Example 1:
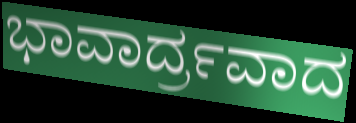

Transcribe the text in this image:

ಭಾವಾರ್ದ್ರವಾದ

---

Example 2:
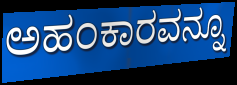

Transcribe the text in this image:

ಅಹಂಕಾರವನ್ನೂ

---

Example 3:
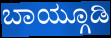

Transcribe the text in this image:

ಬಾಯ್ಗೂಡಿ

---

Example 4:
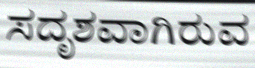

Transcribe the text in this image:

ಸದೃಶವಾಗಿರುವ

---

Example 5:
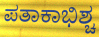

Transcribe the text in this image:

ಪತಾಕಾಭಿಶ್ಚ